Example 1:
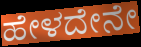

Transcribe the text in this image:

ಹೇಳದೇನೇ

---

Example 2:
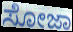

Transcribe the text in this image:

ಸೋಜಾ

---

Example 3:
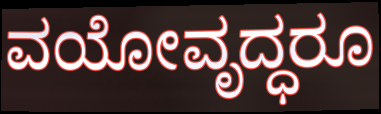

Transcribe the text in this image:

ವಯೋವೃದ್ಧರೂ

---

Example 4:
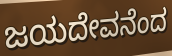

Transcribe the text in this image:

ಜಯದೇವನೆಂದ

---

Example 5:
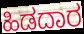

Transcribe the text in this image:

ಹಿಡದಾರ